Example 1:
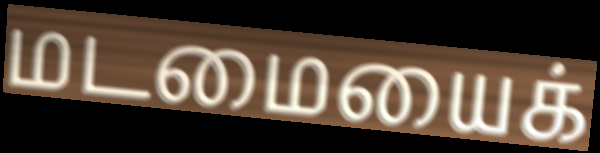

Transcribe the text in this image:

மடமையைக்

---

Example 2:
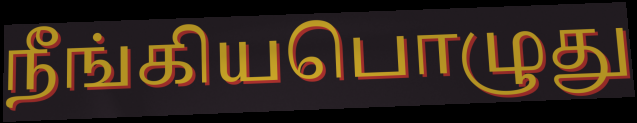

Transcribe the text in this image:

நீங்கியபொழுது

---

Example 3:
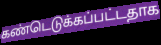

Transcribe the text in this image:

கண்டெடுக்கப்பட்டதாக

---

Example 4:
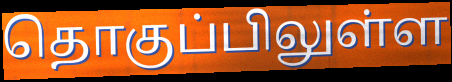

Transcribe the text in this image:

தொகுப்பிலுள்ள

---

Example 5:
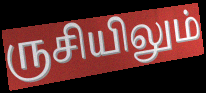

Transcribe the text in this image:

ருசியிலும்